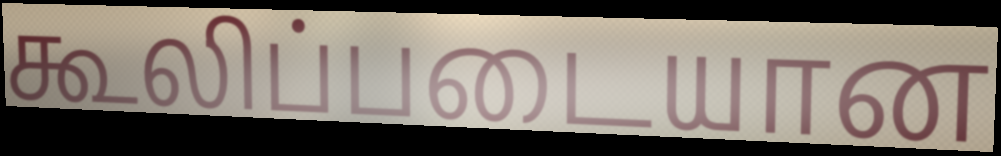
கூலிப்படையான